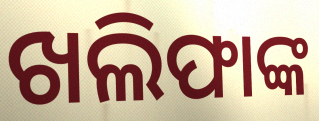
ଖଲିଫାଙ୍କ